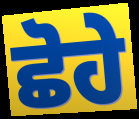
ਛੋਹੇ